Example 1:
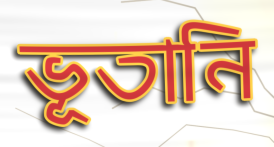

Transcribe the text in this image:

ভূতানি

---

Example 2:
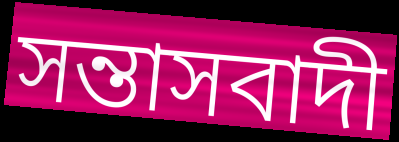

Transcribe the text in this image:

সন্তাসবাদী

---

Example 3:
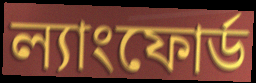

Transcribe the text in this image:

ল্যাংফোর্ড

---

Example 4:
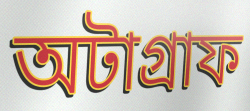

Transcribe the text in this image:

অটাগ্রাফ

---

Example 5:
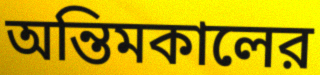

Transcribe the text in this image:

অন্তিমকালের